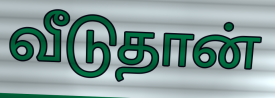
வீடுதான்